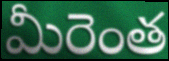
మీరెంత